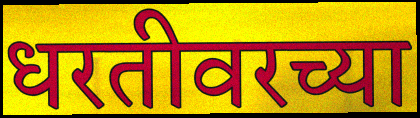
धरतीवरच्या